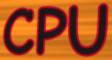
CPU